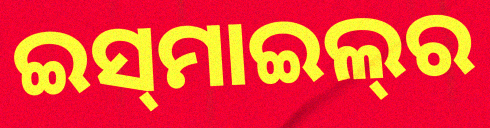
ଇସ୍‌ମାଇଲ୍‌ର